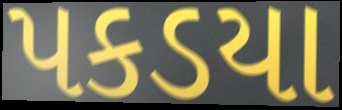
પકડયા